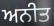
ਅਨੀਤ